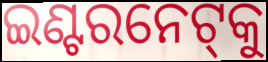
ଇଣ୍ଟରନେଟ୍‌କୁ